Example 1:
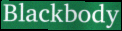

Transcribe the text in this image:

Blackbody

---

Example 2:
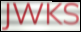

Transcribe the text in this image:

JWKS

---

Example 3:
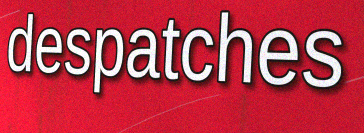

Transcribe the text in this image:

despatches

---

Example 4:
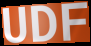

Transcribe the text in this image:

UDF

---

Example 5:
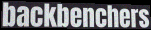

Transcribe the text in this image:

backbenchers